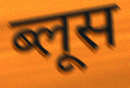
ब्लूस